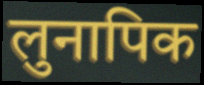
लुनापिक